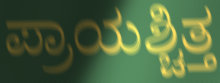
ಪ್ರಾಯಶ್ಚಿತ್ತ